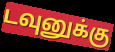
டவுனுக்கு